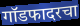
गॉडफादरचा